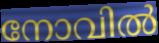
നോവിൽ